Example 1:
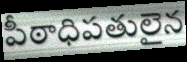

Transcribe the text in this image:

పీఠాధిపతులైన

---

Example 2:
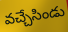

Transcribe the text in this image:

వచ్చేసిండు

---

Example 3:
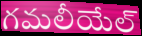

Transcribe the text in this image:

గమలీయేల్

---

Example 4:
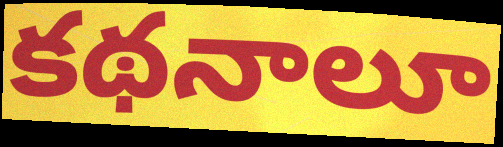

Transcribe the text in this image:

కథనాలూ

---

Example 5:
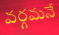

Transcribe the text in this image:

వర్గమనే